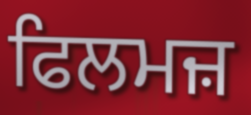
ਫਿਲਮਜ਼